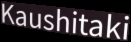
Kaushitaki